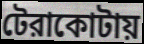
টেরাকোটায়